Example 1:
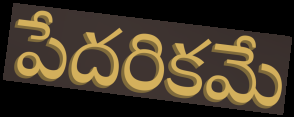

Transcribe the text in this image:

పేదరికమే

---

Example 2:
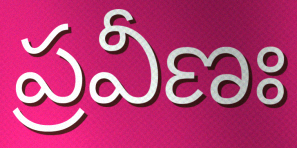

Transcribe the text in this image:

ప్రవీణః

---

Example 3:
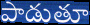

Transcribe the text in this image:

పాడుతూ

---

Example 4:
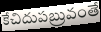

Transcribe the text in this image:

కేచిదుపబ్రువంతే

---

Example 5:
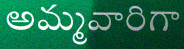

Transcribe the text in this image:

అమ్మవారిగా